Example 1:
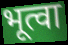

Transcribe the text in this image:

भूत्वा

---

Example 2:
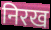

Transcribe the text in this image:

निरख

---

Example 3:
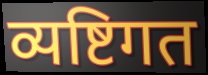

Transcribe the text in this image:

व्यष्टिगत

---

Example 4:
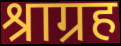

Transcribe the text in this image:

श्राग्रह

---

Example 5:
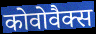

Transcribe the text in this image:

कोवोवैक्स